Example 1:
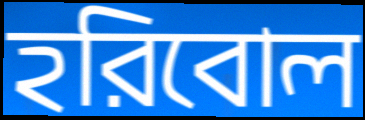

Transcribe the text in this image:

হরিবোল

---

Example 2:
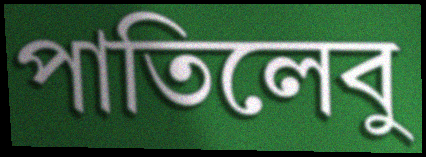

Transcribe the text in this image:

পাতিলেবু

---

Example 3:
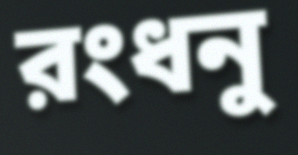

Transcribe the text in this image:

রংধনু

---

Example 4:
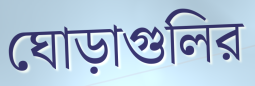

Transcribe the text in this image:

ঘোড়াগুলির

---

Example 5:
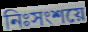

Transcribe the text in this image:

নিঃসংশয়ে